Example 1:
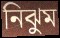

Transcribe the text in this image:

নিঝুম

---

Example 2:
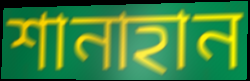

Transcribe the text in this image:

শানাহান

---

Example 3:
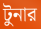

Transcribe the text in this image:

টুনার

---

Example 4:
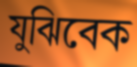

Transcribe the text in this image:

যুঝিবেক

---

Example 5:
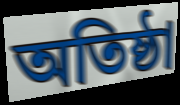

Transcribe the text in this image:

অতিষ্ঠা